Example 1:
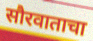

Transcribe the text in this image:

सौरवाताचा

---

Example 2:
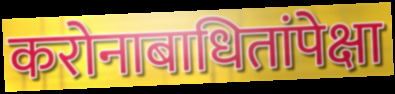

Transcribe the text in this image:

करोनाबाधितांपेक्षा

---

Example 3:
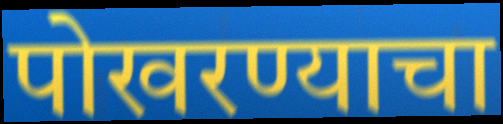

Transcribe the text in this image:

पोखरण्याचा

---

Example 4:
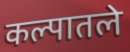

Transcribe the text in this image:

कल्पातले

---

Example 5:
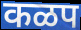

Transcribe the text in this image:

कळप